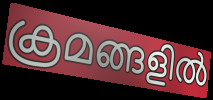
ക്രമങ്ങളിൽ